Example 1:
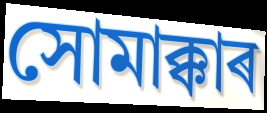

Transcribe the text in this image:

সোমাক্কাৰ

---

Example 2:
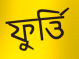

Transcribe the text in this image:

ফুৰ্ত্তি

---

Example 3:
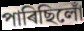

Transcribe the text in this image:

পাৰিছিলোঁ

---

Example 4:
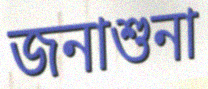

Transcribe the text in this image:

জনাশুনা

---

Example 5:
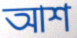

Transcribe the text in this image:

আশ